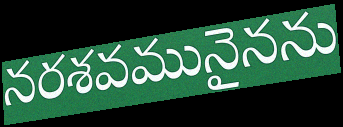
నరశవమునైనను